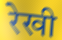
रेखी